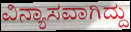
ವಿನ್ಯಾಸವಾಗಿದ್ದು